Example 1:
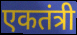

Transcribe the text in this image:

एकतंत्री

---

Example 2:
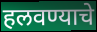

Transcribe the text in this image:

हलवण्याचे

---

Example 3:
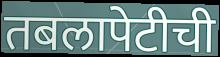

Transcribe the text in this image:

तबलापेटीची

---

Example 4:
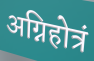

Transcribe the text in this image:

अग्निहोत्रं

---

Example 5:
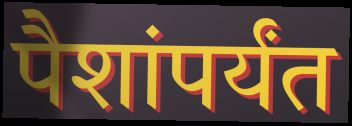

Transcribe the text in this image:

पैशांपर्यंत